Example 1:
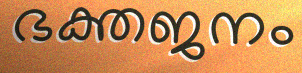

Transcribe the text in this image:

ഭക്തജനം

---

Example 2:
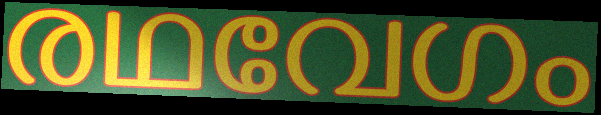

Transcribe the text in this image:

രഥവേഗം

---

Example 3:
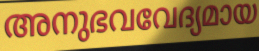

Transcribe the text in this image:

അനുഭവവേദ്യമായ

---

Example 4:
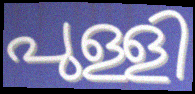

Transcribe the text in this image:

പുള്ളി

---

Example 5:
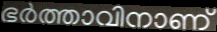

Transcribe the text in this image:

ഭർത്താവിനാണ്